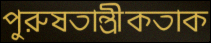
পুৰুষতান্ত্ৰীকতাক